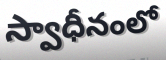
స్వాధీనంలో